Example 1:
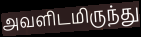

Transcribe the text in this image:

அவளிடமிருந்து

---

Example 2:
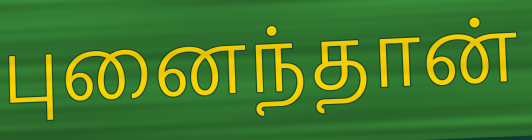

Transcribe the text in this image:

புனைந்தான்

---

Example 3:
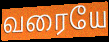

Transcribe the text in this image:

வரையே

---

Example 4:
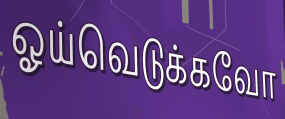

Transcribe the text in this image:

ஓய்வெடுக்கவோ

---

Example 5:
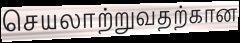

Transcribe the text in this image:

செயலாற்றுவதற்கான